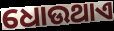
ଧୋଉଥାଏ